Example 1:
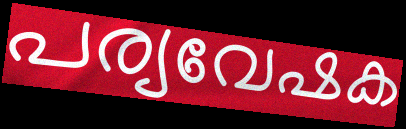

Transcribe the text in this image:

പര്യവേഷക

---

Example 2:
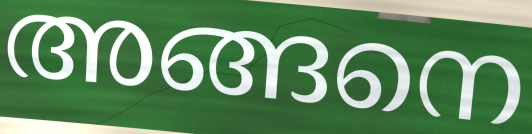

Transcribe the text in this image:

അങ്ങനെ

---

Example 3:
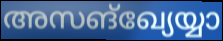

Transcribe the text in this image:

അസങ്ഖ്യേയ്യാ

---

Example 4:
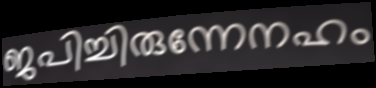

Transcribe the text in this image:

ജപിച്ചിരുന്നേനഹം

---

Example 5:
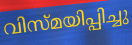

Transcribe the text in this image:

വിസ്മയിപ്പിച്ചു